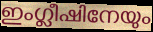
ഇംഗ്ലീഷിനേയും